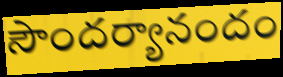
సౌందర్యానందం